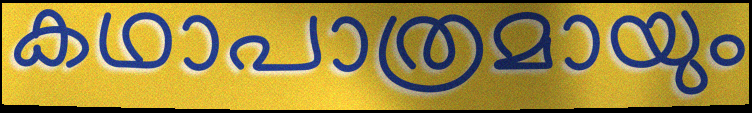
കഥാപാത്രമായും